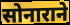
सोनाराने